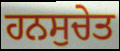
ਹਨਸੁਚੇਤ